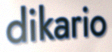
dikario